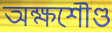
অক্ষশৌণ্ড